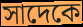
সাদেকে